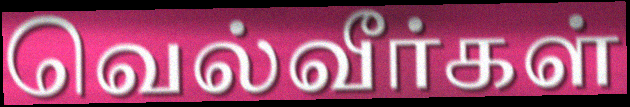
வெல்வீர்கள்